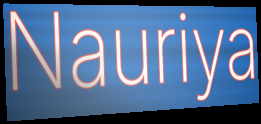
Nauriya